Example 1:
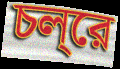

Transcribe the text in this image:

চল্‌রে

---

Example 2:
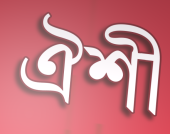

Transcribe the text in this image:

ঐশী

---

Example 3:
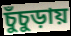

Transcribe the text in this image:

চুঁচুড়ায়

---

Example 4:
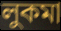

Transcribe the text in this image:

লুকমা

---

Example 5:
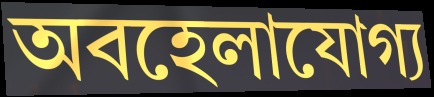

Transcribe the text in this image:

অবহেলাযোগ্য